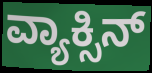
ವ್ಯಾಕ್ಸಿನ್